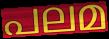
പലമ